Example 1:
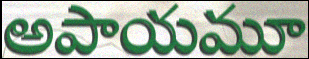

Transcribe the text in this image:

అపాయమూ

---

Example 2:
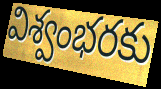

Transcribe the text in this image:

విశ్వంభరకు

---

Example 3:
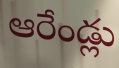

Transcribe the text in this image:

ఆరేండ్లు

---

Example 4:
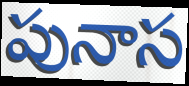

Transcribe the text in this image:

పునాస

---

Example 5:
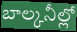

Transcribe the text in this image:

బాల్కనీల్లో